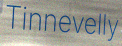
Tinnevelly